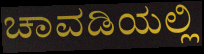
ಚಾವಡಿಯಲ್ಲಿ